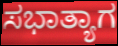
ಸಭಾತ್ಯಾಗ